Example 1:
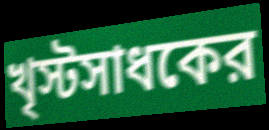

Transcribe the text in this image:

খৃস্টসাধকের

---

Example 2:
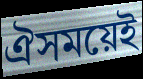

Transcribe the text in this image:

ঐসময়েই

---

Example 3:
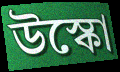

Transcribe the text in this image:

উস্কো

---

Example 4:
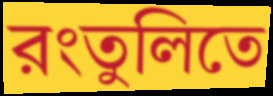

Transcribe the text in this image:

রংতুলিতে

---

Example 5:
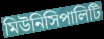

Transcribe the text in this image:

মিউনিসিপালিটি